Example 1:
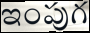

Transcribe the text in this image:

ఇంపుగ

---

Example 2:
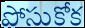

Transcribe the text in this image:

పోసుకోక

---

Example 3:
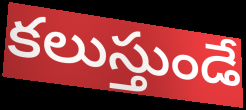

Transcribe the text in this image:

కలుస్తుండే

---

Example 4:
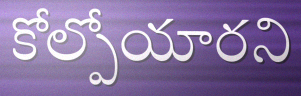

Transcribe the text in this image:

కోల్పోయారని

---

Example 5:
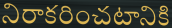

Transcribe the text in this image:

నిరాకరించటానికి